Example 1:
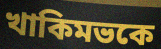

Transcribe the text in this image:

খাকিমভকে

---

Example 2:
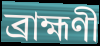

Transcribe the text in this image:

ব্রাহ্মণী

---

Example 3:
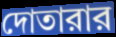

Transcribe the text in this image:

দোতারার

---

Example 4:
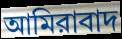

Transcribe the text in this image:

আমিরাবাদ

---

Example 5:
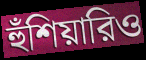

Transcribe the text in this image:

হুঁশিয়ারিও